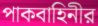
পাকবাহিনীর